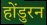
होंडुरन